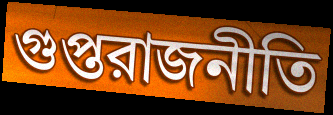
গুপ্তরাজনীতি